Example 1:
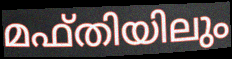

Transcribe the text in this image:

മഫ്തിയിലും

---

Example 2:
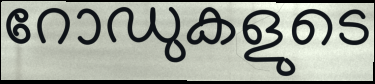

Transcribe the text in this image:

റോഡുകളുടെ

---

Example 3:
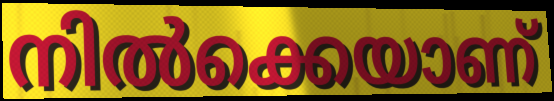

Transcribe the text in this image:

നിൽക്കെയാണ്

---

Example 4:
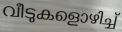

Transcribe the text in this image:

വീടുകളൊഴിച്ച്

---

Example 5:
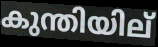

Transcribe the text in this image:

കുന്തിയില്